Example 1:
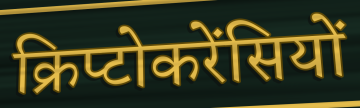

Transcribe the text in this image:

क्रिप्टोकरेंसियों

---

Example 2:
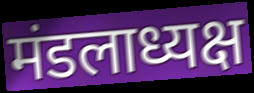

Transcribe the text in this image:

मंडलाध्यक्ष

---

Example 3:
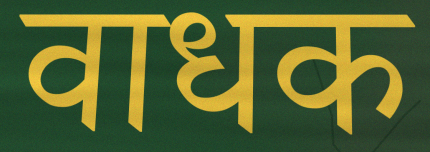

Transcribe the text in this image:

वाधक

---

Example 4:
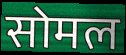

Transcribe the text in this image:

सोमल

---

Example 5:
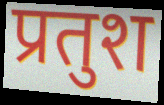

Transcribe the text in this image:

प्रतुश